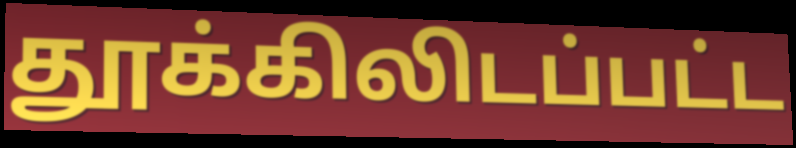
தூக்கிலிடப்பட்ட